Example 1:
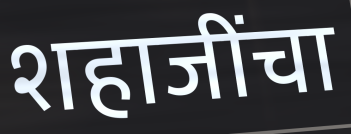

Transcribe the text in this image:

शहाजींचा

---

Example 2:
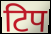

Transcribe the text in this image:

टिप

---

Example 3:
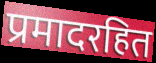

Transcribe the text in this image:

प्रमादरहित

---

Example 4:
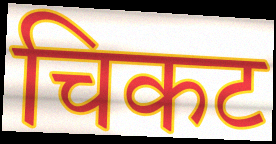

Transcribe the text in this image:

चिकट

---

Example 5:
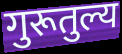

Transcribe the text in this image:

गुरूतुल्य